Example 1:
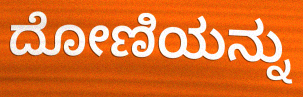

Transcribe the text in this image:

ದೋಣಿಯನ್ನು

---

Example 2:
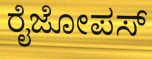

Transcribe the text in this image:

ರೈಜೋಪಸ್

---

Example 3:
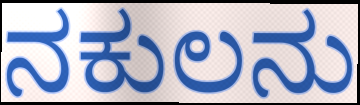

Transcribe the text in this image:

ನಕುಲನು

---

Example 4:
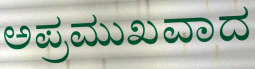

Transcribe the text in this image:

ಅಪ್ರಮುಖವಾದ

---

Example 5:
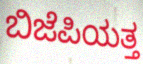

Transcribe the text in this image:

ಬಿಜೆಪಿಯತ್ತ